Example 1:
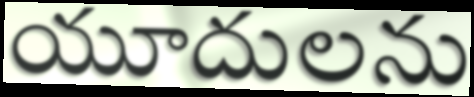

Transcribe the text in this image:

యూదులను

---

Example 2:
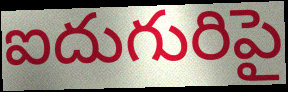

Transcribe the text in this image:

ఐదుగురిపై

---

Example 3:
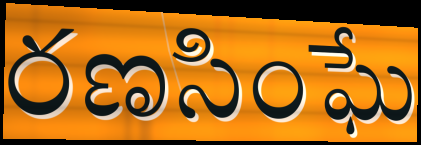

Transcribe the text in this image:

రణసింఘే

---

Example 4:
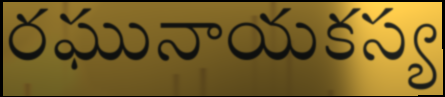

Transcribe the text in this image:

రఘునాయకస్య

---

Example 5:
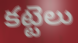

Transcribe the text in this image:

కట్టెలు